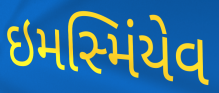
ઇમસ્મિંયેવ